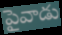
పైవాడు